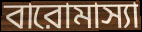
বারোমাস্যা